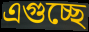
এগুচ্ছে